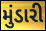
મુંડારી